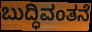
ಬುದ್ಧಿವಂತನೆ